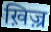
ख़िज़्र